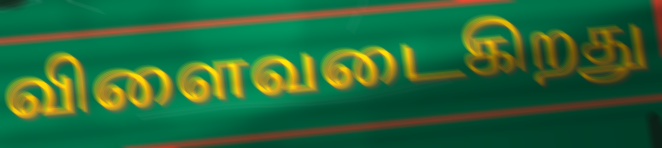
விளைவடைகிறது